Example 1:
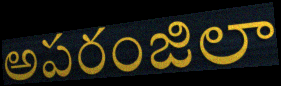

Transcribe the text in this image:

అపరంజిలా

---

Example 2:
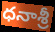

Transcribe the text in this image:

ధనాశ్రీ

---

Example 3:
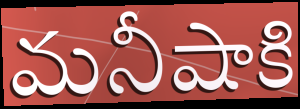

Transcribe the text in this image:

మనీషాకి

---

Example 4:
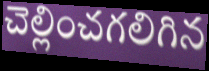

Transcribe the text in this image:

చెల్లించగలిగిన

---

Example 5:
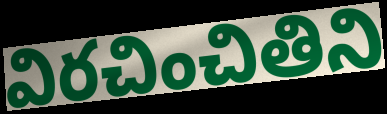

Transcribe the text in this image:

విరచించితిని